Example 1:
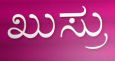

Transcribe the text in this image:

ಖುಸ್ರು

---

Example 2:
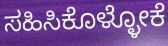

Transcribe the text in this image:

ಸಹಿಸಿಕೊಳ್ಳೋಕೆ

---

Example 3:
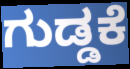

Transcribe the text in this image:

ಗುಡ್ಡಕೆ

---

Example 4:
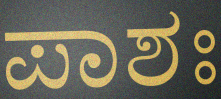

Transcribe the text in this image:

ಪಾಶಃ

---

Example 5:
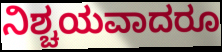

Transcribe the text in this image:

ನಿಶ್ಚಯವಾದರೂ